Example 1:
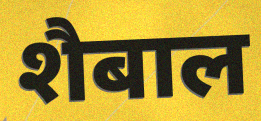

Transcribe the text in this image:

शैबाल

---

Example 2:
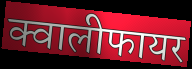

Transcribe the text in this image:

क्‍वालीफायर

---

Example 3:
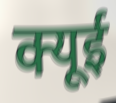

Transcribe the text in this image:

क्यूई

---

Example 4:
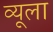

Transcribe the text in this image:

व्यूला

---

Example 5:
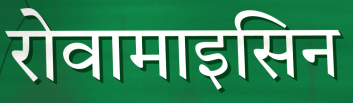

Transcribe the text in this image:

रोवामाइसिन